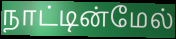
நாட்டின்மேல்